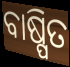
ବାଷ୍ପିତ